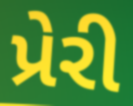
પ્રેરી